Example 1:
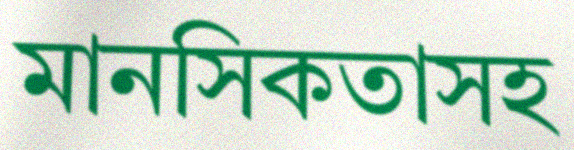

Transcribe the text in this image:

মানসিকতাসহ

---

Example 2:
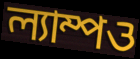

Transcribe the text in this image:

ল্যাম্পও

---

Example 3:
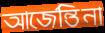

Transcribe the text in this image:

আর্জেন্তিনা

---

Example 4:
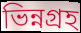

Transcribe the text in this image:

ভিন্নগ্রহ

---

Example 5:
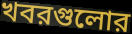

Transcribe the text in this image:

খবরগুলোর